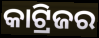
କାଟ୍ରିଜର